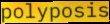
polyposis